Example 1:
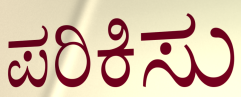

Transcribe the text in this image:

ಪರಿಕಿಸು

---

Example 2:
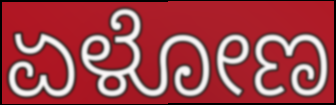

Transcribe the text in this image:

ಏಳೋಣ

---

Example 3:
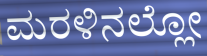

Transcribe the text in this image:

ಮರಳಿನಲ್ಲೋ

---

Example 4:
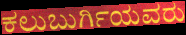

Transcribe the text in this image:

ಕಲುಬುರ್ಗಿಯವರು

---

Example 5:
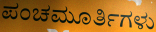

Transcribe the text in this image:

ಪಂಚಮೂರ್ತಿಗಳು